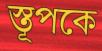
স্তূপকে